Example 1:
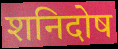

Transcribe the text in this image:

शनिदोष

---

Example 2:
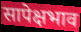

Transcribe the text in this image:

सापेक्षभाव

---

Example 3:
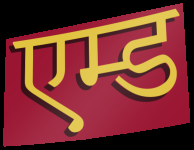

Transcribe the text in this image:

एम्ड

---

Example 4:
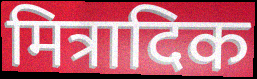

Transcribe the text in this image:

मित्रादिक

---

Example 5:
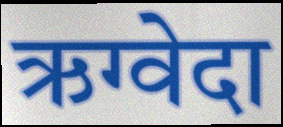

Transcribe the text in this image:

ऋग्वेदा